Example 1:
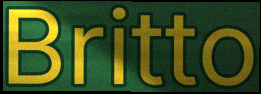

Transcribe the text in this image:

Britto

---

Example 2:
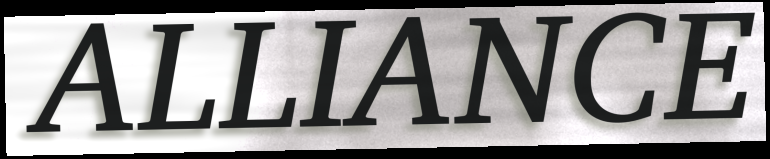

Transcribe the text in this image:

ALLIANCE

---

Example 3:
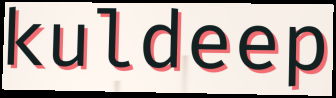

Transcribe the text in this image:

kuldeep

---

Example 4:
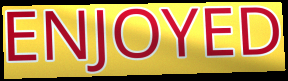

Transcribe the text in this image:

ENJOYED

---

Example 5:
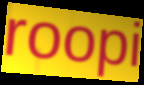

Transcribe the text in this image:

roopi